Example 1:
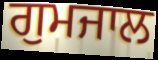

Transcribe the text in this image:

ਗੁਮਜਾਲ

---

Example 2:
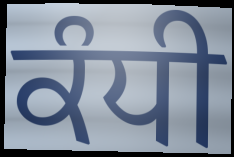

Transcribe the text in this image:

ਕੰਧੀ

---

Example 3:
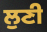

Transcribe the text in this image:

ਲੁਣੀ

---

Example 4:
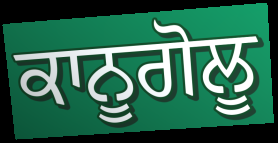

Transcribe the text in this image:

ਕਾਨੂਗੋਲੂ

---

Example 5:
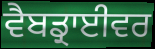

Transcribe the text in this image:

ਵੈਬਡ੍ਰਾਈਵਰ